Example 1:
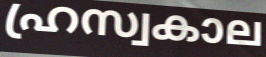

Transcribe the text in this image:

ഹ്രസ്വകാല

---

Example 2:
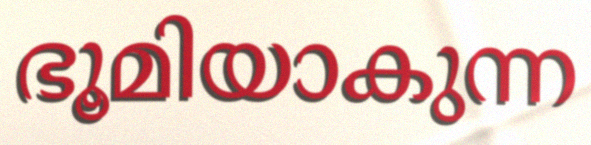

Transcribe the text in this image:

ഭൂമിയാകുന്ന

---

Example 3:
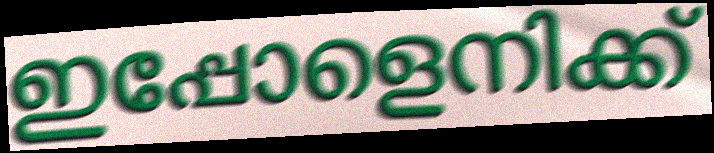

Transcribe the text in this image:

ഇപ്പോളെനിക്ക്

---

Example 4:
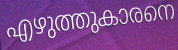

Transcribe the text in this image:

എഴുത്തുകാരനെ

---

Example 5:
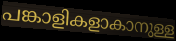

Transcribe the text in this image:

പങ്കാളികളാകാനുള്ള